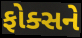
ફોક્સને